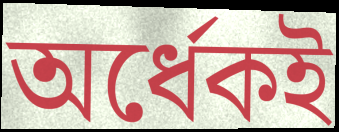
অর্ধেকই